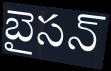
బైసన్